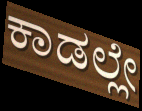
ಕಾಡಲ್ಲೇ